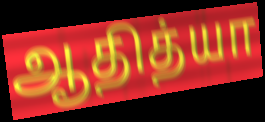
ஆதித்யா